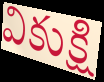
వికుక్షి